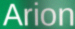
Arion